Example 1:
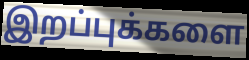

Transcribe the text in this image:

இறப்புக்களை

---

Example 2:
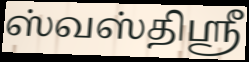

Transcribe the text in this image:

ஸ்வஸ்திஸ்ரீ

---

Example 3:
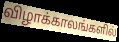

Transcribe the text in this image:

விழாக்காலங்களில்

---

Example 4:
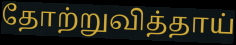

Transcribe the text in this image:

தோற்றுவித்தாய்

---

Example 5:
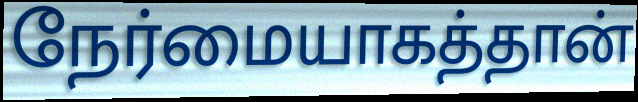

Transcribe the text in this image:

நேர்மையாகத்தான்